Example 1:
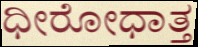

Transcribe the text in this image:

ಧೀರೋಧಾತ್ತ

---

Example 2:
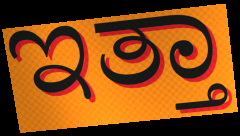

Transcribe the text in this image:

ಇತ್ತಾ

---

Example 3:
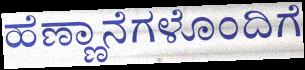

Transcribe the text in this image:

ಹೆಣ್ಣಾನೆಗಳೊಂದಿಗೆ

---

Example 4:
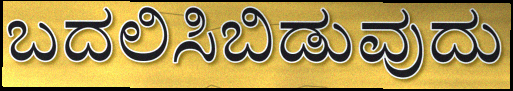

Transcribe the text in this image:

ಬದಲಿಸಿಬಿಡುವುದು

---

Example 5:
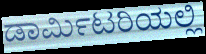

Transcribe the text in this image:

ಡಾರ್ಮಿಟರಿಯಲ್ಲಿ